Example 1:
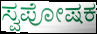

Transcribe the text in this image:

ಸ್ವಪೋಷಕ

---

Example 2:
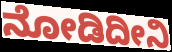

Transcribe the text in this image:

ನೋಡಿದೀನಿ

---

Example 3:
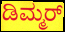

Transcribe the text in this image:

ಡಿಮ್ಮರ್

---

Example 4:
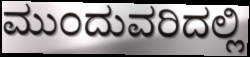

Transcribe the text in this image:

ಮುಂದುವರಿದಲ್ಲಿ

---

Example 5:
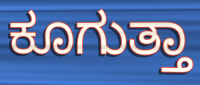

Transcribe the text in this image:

ಕೂಗುತ್ತಾ